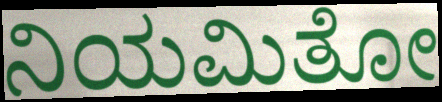
ನಿಯಮಿತೋ